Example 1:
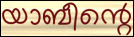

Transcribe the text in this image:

യാബീന്റെ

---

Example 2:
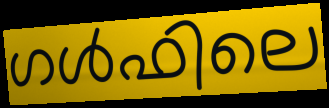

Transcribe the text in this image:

ഗൾഫിലെ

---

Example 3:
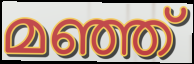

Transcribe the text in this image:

മഞ്ഞ്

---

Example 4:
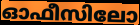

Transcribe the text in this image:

ഓഫീസിലോ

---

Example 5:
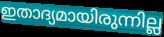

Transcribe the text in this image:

ഇതാദ്യമായിരുന്നില്ല